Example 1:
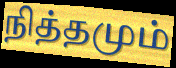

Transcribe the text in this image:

நித்தமும்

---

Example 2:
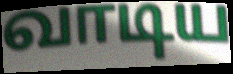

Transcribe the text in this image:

வாடிய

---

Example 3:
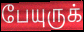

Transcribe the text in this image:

பேயுருக்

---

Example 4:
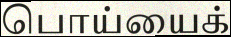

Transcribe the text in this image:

பொய்யைக்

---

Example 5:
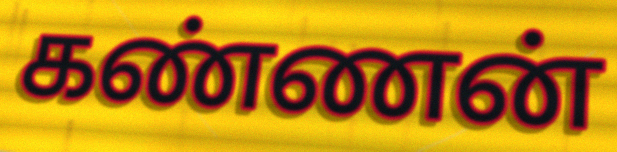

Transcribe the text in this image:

கண்ணன்